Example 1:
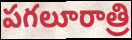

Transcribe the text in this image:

పగలూరాత్రి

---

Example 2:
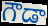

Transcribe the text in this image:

గౌడా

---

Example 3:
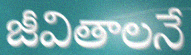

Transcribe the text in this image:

జీవితాలనే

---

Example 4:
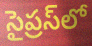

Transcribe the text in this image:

సైప్రస్‌లో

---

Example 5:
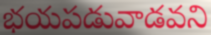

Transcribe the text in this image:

భయపడువాడవని